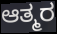
ಆತ್ಮರ